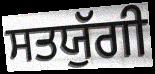
ਸਤਯੁੱਗੀ